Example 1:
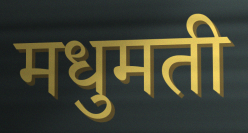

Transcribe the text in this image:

मधुमती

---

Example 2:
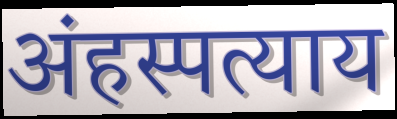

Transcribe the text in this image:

अंहस्पत्याय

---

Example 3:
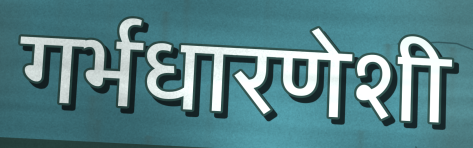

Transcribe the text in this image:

गर्भधारणेशी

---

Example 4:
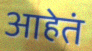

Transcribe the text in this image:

आहेतं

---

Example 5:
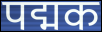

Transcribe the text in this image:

पद्मक